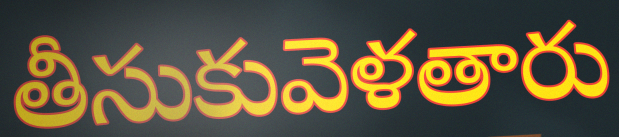
తీసుకువెళతారు